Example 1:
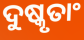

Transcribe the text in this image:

ଦୁଷ୍କୃତାଂ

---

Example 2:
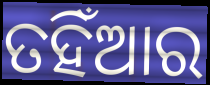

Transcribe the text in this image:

ତହିଁଆର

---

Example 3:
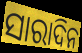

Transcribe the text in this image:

ସାରାଦିନ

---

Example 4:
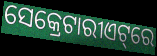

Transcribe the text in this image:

ସେକ୍ରେଟାରୀଏଟ୍‌ରେ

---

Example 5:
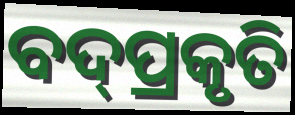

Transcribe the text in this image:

ବଦ୍‌ପ୍ରକୃତି